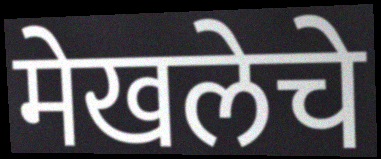
मेखलेचे